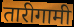
तारीगामी